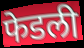
फेडली